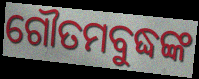
ଗୌତମବୁଦ୍ଧଙ୍କ